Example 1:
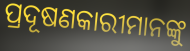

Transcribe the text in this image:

ପ୍ରଦୂଷଣକାରୀମାନଙ୍କୁ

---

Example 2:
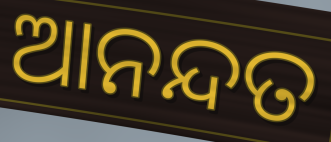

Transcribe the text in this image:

ଆନନ୍ଦତ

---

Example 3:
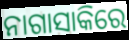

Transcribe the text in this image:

ନାଗାସାକିରେ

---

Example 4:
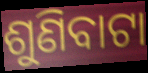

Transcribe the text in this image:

ଶୁଣିବାଟା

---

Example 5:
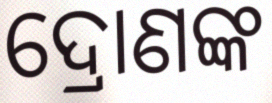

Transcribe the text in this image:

ଦ୍ରୋଣଙ୍କ